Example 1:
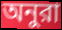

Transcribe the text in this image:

অনুরা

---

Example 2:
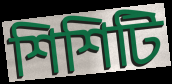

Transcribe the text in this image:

শিশিটি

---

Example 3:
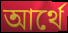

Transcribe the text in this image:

আর্থে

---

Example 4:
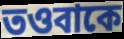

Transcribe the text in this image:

তওবাকে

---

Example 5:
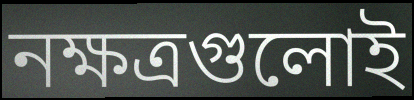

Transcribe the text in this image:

নক্ষত্রগুলোই